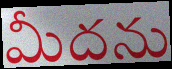
మీదను